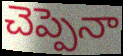
చెప్పెనా